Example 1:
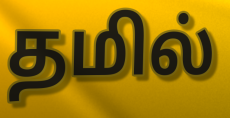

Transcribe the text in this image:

தமில்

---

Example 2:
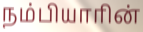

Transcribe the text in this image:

நம்பியாரின்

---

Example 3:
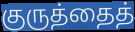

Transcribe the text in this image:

குருத்தைத்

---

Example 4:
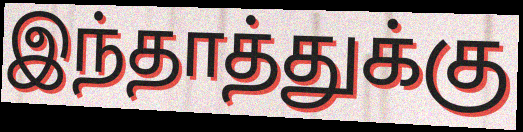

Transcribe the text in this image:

இந்தாத்துக்கு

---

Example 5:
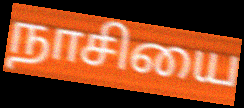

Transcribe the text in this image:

நாசியை